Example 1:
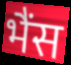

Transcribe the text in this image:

भैंस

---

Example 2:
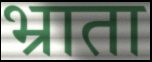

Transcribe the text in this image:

भ्राता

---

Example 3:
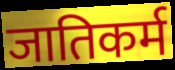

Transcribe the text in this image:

जातिकर्म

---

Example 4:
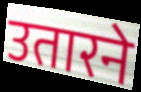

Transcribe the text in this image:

उतारने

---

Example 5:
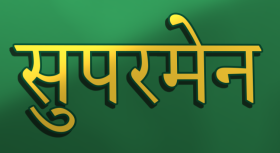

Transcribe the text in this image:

सुपरमेन